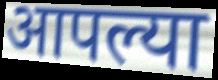
आपल्या